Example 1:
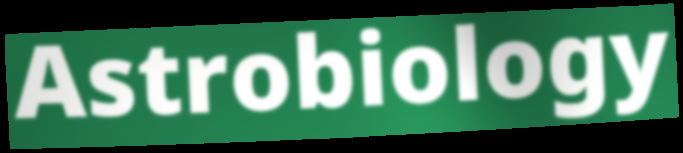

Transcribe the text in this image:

Astrobiology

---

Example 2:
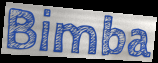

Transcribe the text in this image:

Bimba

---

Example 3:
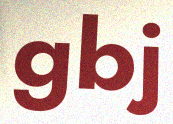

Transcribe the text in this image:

gbj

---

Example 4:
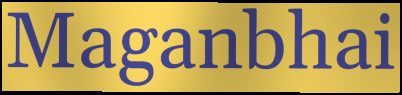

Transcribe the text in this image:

Maganbhai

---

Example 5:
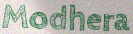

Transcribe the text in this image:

Modhera